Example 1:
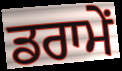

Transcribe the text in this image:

ਡਰਾਮੇਂ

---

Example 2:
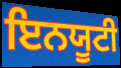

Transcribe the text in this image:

ਇਨਯੂਟੀ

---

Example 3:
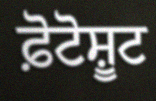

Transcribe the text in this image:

ਫ਼ੋਟੋਸ਼ੂਟ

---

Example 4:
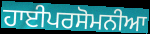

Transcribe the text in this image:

ਹਾਈਪਰਸੋਮਨੀਆ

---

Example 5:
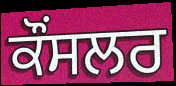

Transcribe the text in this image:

ਕੌੰਸਲਰ